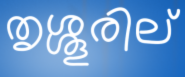
തൃശ്ശൂരില്